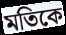
মতিকে